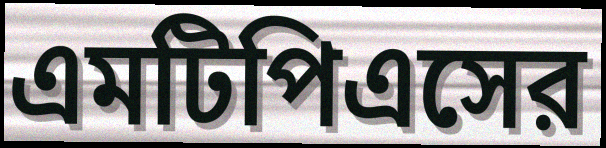
এমটিপিএসের